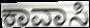
ಕಾವಾಸಿ